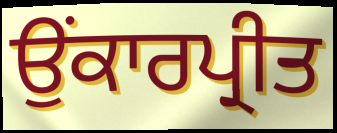
ਉਂਕਾਰਪ੍ਰੀਤ